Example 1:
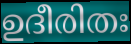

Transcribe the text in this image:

ഉദീരിതഃ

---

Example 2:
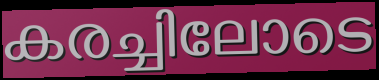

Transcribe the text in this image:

കരച്ചിലോടെ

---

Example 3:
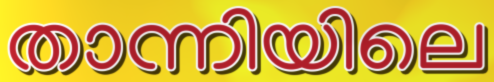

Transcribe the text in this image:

താന്നിയിലെ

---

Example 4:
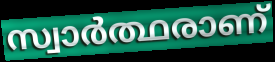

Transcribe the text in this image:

സ്വാർത്ഥരാണ്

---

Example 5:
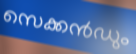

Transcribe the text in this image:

സെക്കൻഡും